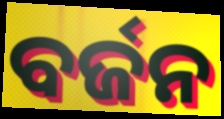
ବର୍ଜନ